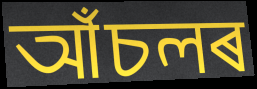
আঁচলৰ